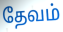
தேவம்